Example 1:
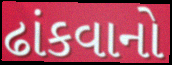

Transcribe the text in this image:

ઢાંકવાનો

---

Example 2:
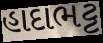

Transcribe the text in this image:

હાદાભટ્ટ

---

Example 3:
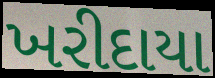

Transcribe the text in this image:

ખરીદાયા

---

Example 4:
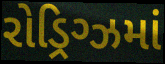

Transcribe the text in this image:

રોડ્રિગ્ઝમાં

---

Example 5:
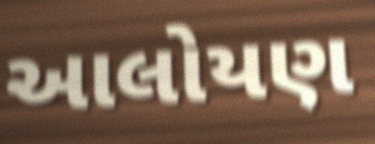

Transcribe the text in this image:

આલોયણ